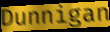
Dunnigan